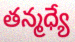
తన్మధ్యే